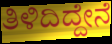
ತಿಳಿದಿದ್ದೇನೆ